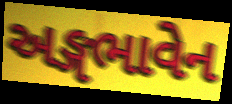
અઙ્ગભાવેન